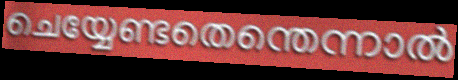
ചെയ്യേണ്ടതെന്തെന്നാൽ